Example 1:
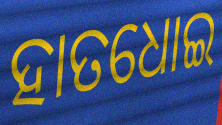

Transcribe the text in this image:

ହାତଧୋଇ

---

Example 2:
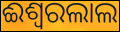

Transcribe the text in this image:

ଈଶ୍ଵରଲାଲ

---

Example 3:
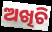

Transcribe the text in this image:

ଅଖିଚି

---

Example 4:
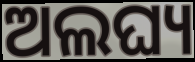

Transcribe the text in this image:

ଅଲଘ୍ୟ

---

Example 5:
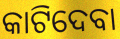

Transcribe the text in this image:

କାଟିଦେବା